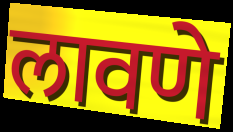
लावणे